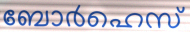
ബോർഹെസ്